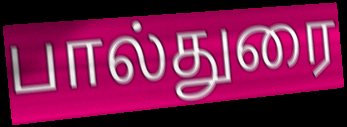
பால்துரை